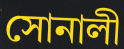
সোনালী